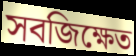
সবজিক্ষেত